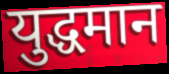
युद्धमान